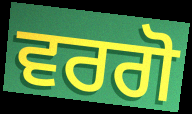
ਵਰਗੋ